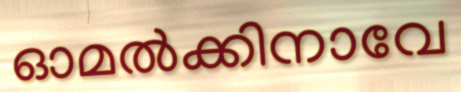
ഓമൽക്കിനാവേ